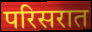
परिसरात